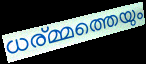
ധര്മ്മത്തെയും